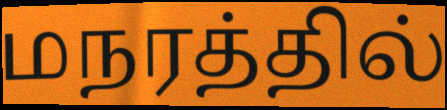
மநரத்தில்